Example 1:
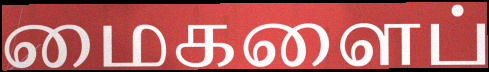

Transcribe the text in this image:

மைகளைப்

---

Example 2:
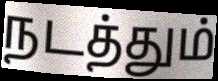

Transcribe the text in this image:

நடத்தும்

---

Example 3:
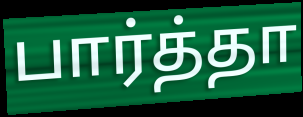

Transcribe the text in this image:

பார்த்தா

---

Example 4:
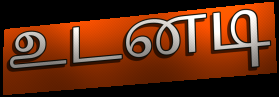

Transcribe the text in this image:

உடனடி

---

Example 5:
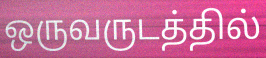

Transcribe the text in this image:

ஒருவருடத்தில்